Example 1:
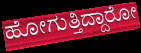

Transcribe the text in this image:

ಹೋಗುತ್ತಿದ್ದಾರೋ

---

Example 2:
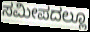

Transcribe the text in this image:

ಸಮೀಪದಲ್ಲೂ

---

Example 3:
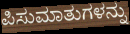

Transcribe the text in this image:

ಪಿಸುಮಾತುಗಳನ್ನು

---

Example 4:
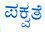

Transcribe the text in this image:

ಪಕ್ವತೆ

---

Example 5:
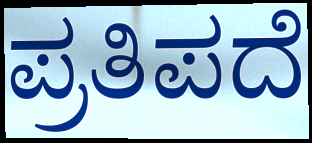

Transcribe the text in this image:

ಪ್ರತಿಪದೆ